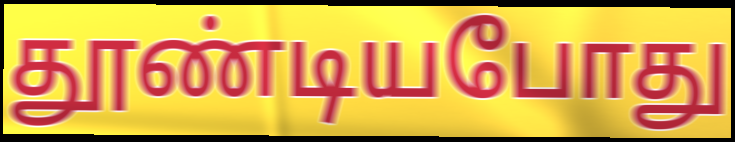
தூண்டியபோது